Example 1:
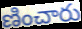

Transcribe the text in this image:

ణించారు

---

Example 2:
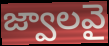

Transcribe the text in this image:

జ్వాలవై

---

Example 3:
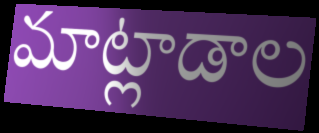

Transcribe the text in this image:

మాట్లాడాల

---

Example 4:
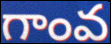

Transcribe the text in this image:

గాంవ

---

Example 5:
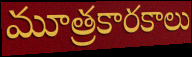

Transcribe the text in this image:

మూత్రకారకాలు